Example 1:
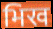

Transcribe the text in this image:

भिख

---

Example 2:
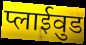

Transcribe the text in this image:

प्‍लाईवुड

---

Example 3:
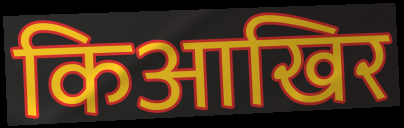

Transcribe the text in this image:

किआखिर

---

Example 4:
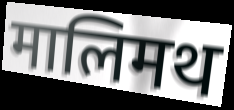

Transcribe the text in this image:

मालिमथ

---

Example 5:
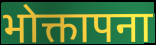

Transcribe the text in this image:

भोक्तापना